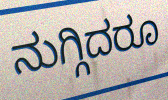
ನುಗ್ಗಿದರೂ